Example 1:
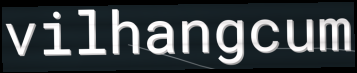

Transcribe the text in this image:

vilhangcum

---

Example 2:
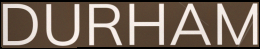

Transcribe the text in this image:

DURHAM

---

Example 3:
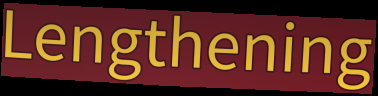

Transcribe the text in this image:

Lengthening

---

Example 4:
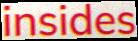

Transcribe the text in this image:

insides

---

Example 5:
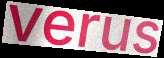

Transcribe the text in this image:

verus